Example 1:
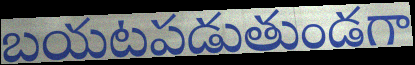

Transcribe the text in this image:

బయటపడుతుండగా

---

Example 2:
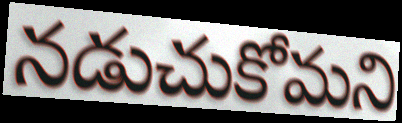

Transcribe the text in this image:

నడుచుకోమని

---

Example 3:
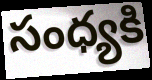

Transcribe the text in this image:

సంధ్యకి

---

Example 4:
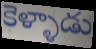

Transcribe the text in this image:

కెళ్ళాడు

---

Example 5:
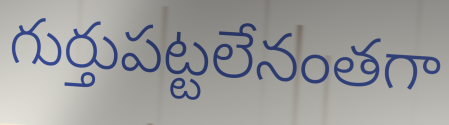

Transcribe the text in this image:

గుర్తుపట్టలేనంతగా